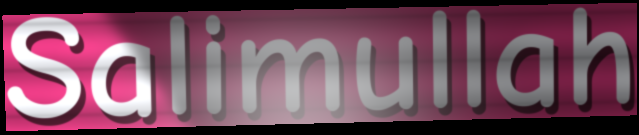
Salimullah